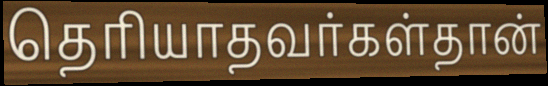
தெரியாதவர்கள்தான்